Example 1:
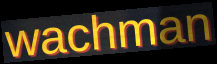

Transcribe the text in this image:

wachman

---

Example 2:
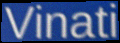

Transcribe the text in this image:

Vinati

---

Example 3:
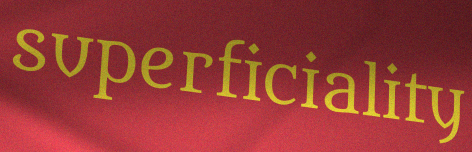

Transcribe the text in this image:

superficiality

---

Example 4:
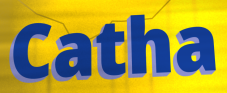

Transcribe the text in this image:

Catha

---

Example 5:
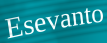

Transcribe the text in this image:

Esevanto